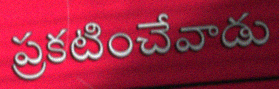
ప్రకటించేవాడు